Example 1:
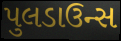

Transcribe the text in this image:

પુલડાઉન્સ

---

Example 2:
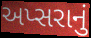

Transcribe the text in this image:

અપ્સરાનું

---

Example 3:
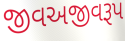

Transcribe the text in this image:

જીવઅજીવરૂપ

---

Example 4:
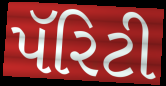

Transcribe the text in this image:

પૅરિટી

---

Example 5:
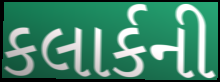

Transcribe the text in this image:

કલાર્કની